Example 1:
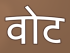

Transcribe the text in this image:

वोट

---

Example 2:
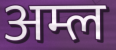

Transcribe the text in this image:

अम्ल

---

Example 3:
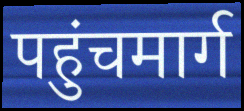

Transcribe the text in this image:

पहुंचमार्ग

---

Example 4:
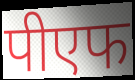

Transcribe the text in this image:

पीएफ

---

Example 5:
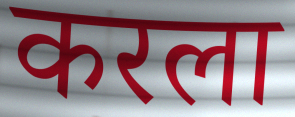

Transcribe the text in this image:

करला